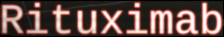
Rituximab